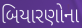
બિયારણોના